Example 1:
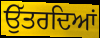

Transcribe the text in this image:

ਉੱਤਰਦਿਆਂ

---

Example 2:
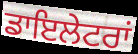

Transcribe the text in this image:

ਡਾਇਲੇਟਰਾਂ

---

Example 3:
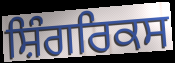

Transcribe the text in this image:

ਸ਼ਿੰਗਰਿਕਸ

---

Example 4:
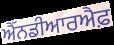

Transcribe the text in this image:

ਐੱਨਡੀਆਰਐਫ਼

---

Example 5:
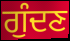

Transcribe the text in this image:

ਗੁੰਦਣ